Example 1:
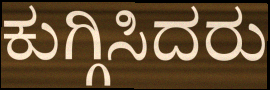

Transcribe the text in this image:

ಕುಗ್ಗಿಸಿದರು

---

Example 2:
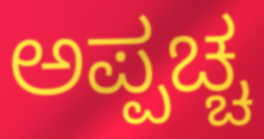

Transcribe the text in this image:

ಅಪ್ಪಚ್ಚ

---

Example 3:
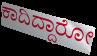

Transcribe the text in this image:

ಕಾದಿದ್ದಾರೋ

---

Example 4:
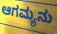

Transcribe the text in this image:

ಆಗಮ್ಯನು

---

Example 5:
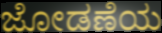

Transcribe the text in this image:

ಜೋಡಣೆಯ